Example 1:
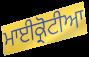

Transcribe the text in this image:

ਮਾਈਕ੍ਰੋਟੀਆ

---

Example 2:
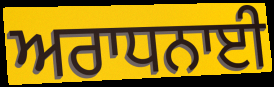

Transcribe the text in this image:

ਅਰਾਧਨਾਈ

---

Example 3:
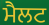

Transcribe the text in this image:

ਮੈਲਟ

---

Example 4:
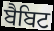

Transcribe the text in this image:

ਬੈਬਿਟ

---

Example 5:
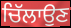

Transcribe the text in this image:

ਚਿੱਲਾਉਣ